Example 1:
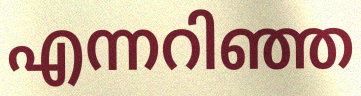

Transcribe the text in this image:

എന്നറിഞ്ഞ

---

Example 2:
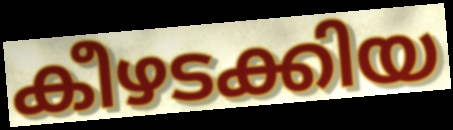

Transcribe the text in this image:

കീഴടക്കിയ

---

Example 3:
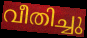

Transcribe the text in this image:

വീതിച്ചു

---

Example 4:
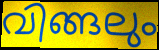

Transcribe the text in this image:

വിങ്ങലും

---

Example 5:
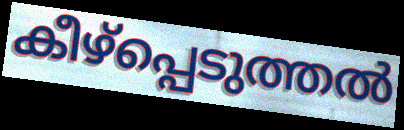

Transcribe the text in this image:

കീഴ്പ്പെടുത്തൽ